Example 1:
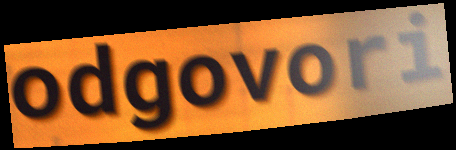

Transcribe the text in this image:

odgovori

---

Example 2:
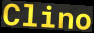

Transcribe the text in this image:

Clino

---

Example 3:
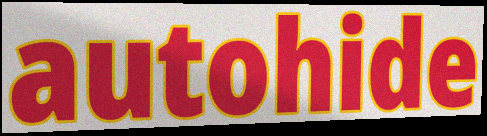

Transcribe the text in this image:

autohide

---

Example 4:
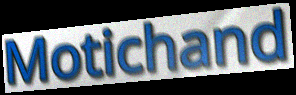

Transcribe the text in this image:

Motichand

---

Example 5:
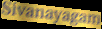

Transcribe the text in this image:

Sivanayagam